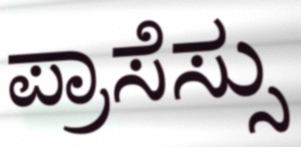
ಪ್ರಾಸೆಸ್ಸು